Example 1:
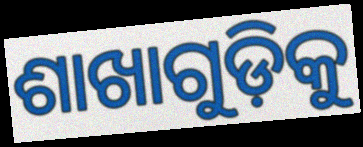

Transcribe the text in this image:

ଶାଖାଗୁଡ଼ିକୁ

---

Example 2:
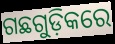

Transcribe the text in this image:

ଗଛଗୁଡ଼ିକରେ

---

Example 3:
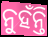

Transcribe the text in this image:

ନୁହଁନ୍ତି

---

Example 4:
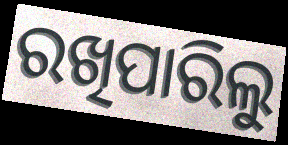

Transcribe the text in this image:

ରଖିପାରିଲୁ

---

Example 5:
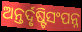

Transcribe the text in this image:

ଅନ୍ତର୍ଦୃଷ୍ଟିସଂପନ୍ନ